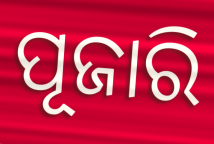
ପୂଜାରି